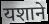
यशाने